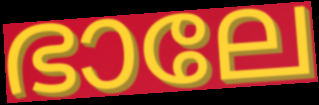
ഭാലേ